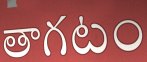
తాగటం